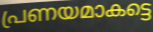
പ്രണയമാകട്ടെ